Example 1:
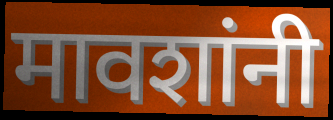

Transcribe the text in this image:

मावशांनी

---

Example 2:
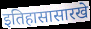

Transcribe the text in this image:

इतिहासासारखे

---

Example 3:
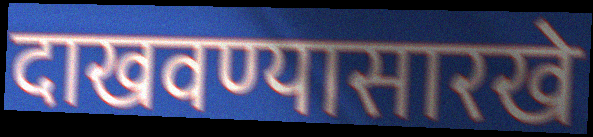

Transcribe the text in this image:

दाखवण्यासारखे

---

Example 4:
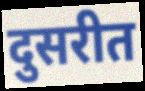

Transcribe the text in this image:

दुसरीत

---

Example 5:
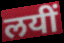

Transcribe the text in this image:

लयीं